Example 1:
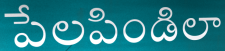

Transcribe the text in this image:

పేలపిండిలా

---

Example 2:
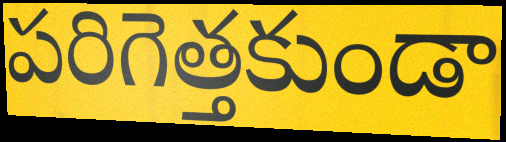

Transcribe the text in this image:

పరిగెత్తకుండా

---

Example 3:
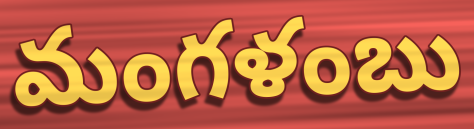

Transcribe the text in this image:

మంగళంబు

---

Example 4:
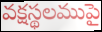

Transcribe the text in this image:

వక్షస్థలముపై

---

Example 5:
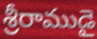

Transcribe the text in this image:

శ్రీరాముడై